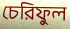
চেরিফুল